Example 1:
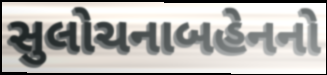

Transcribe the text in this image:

સુલોચનાબહેનનો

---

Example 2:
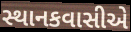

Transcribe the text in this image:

સ્થાનકવાસીએ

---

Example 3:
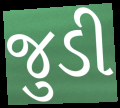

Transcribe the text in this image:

જુડી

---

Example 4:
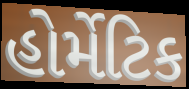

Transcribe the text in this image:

હોર્મેટિક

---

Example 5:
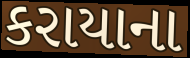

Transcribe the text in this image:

કરાયાના